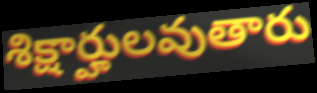
శిక్షార్హులవుతారు